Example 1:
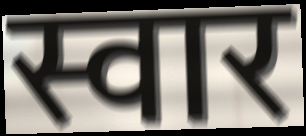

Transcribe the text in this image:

स्वार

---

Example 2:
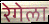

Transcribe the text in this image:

रेगेला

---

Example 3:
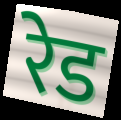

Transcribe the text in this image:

रेड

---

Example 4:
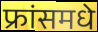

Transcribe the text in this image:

फ्रांसमधे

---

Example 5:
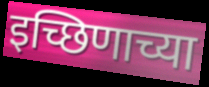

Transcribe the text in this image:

इच्छिणाच्या